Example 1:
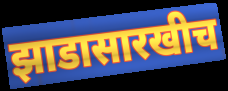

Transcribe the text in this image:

झाडासारखीच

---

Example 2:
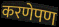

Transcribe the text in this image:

करणेपण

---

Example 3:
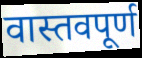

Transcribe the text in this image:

वास्तवपूर्ण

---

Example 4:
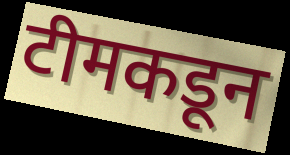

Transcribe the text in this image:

टीमकडून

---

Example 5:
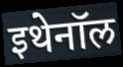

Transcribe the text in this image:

इथेनॉल